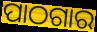
ପାଠଗାର